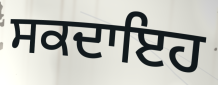
ਸਕਦਾਇਹ